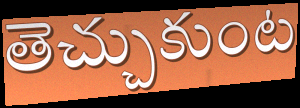
తెచ్చుకుంట